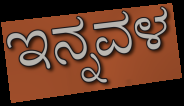
ಇನ್ನವಳ